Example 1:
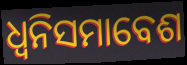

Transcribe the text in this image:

ଧ୍ୱନିସମାବେଶ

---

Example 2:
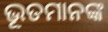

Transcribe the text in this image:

ଭୂତମାନଙ୍କ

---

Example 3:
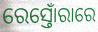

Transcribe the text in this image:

ରେସ୍ତୋଁରାରେ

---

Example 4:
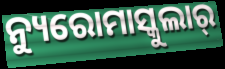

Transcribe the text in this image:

ନ୍ୟୁରୋମାସ୍କୁଲାର୍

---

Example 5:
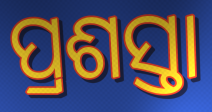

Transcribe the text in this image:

ପ୍ରଶସ୍ତା